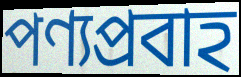
পণ্যপ্রবাহ